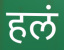
हलं